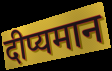
दीप्यमान